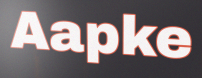
Aapke